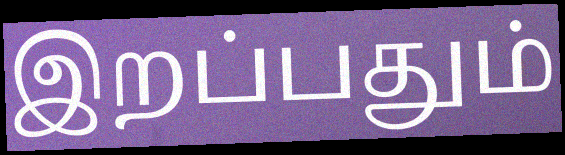
இறப்பதும்